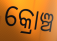
କ୍ରୋଞ୍ଚ